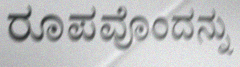
ರೂಪವೊಂದನ್ನು